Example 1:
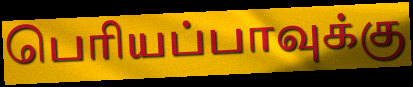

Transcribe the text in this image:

பெரியப்பாவுக்கு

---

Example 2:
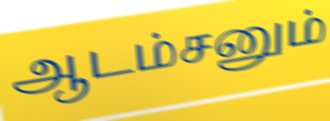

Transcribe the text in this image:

ஆடம்சனும்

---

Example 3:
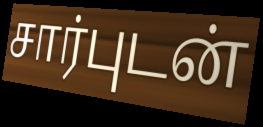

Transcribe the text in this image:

சார்புடன்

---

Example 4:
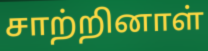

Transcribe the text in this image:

சாற்றினாள்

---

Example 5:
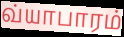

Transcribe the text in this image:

வ்யாபாரம்